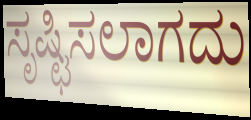
ಸೃಷ್ಟಿಸಲಾಗದು